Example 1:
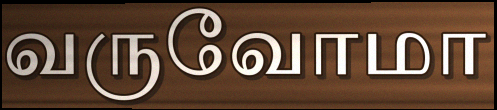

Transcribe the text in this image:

வருவோமா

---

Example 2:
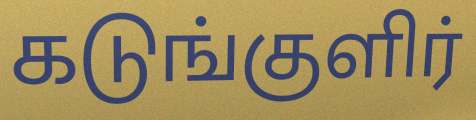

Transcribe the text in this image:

கடுங்குளிர்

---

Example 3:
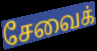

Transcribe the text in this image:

சேவைக்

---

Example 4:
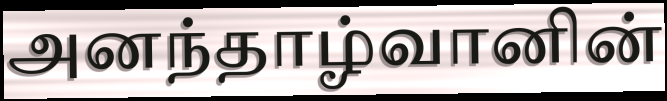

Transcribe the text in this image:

அனந்தாழ்வானின்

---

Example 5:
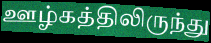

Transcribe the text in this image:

ஊழ்கத்திலிருந்து